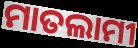
ମାତଲାମୀ